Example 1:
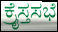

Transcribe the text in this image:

ಕ್ರೈಸ್ತಸಭೆ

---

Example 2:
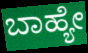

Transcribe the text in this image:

ಬಾಹ್ಯೇ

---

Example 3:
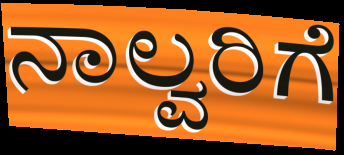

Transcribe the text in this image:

ನಾಲ್ವರಿಗೆ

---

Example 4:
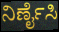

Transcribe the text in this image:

ನಿರ್ಣೈಸಿ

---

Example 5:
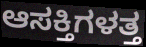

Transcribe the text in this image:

ಆಸಕ್ತಿಗಳತ್ತ